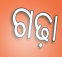
ଗଢ଼ା